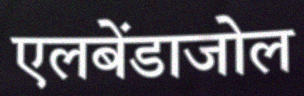
एलबेंडाजोल